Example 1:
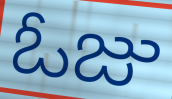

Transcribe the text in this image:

ఓజు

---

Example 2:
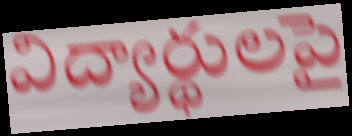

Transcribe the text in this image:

విద్యార్థులపై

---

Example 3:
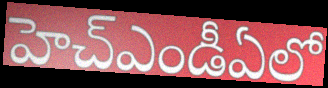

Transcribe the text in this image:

హెచ్ఎండీఏలో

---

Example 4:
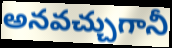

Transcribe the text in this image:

అనవచ్చుగానీ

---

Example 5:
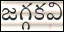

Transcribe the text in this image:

జగ్గకవి